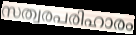
സത്വരപരിഹാരം